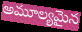
అమూల్యమైన